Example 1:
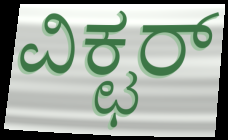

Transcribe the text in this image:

ವಿಕ್ಟರ್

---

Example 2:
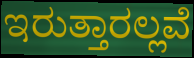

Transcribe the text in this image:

ಇರುತ್ತಾರಲ್ಲವೆ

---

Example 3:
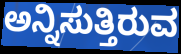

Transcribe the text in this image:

ಅನ್ನಿಸುತ್ತಿರುವ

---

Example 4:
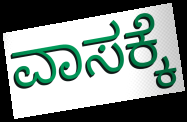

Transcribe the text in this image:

ವಾಸಕ್ಕೆ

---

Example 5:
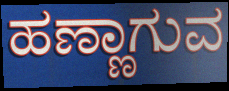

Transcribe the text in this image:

ಹಣ್ಣಾಗುವ